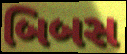
બિબસ